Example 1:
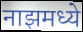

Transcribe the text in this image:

नाझमध्ये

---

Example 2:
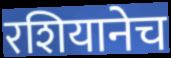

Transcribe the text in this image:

रशियानेच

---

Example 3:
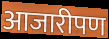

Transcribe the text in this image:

आजारीपण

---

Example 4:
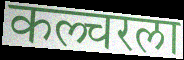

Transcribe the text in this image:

कल्चरला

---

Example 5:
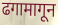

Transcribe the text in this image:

ढगामागून